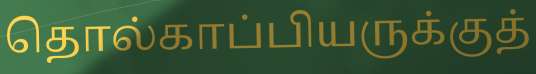
தொல்காப்பியருக்குத்